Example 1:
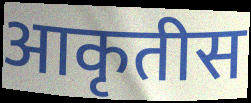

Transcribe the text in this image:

आकृतीस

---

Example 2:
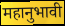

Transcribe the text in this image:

महानुभावी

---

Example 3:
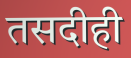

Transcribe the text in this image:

तसदीही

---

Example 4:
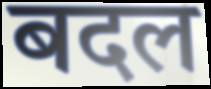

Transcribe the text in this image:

बदल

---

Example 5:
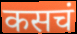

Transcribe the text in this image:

कसचं